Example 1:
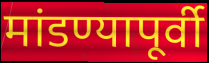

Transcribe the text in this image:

मांडण्यापूर्वी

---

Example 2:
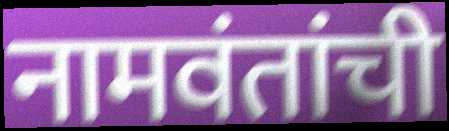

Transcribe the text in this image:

नामवंतांची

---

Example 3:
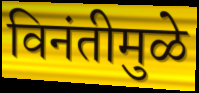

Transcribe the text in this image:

विनंतीमुळे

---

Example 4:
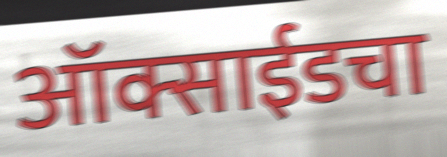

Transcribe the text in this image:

ऑक्साईडचा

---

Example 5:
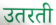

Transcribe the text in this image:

उतरती